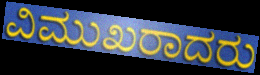
ವಿಮುಖರಾದರು